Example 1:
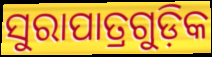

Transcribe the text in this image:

ସୁରାପାତ୍ରଗୁଡ଼ିକ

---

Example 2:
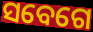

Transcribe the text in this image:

ସବେଗେ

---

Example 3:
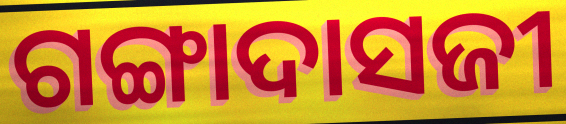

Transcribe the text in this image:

ଗଙ୍ଗାଦାସଜୀ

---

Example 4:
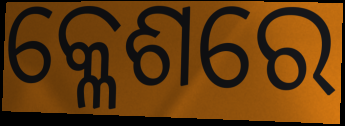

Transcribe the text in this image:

କ୍ଳେଶରେ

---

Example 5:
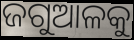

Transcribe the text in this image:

ଜଗୁଆଳକୁ